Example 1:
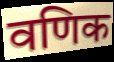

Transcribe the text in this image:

वणिक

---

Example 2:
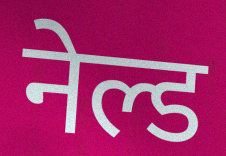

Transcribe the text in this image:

नेल्ड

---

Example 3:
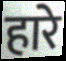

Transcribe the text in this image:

हारे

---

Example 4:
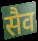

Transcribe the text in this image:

सैव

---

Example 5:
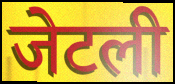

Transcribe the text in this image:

जेटली